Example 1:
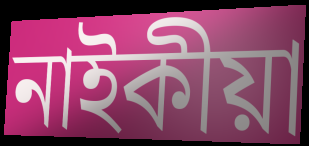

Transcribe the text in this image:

নাইকীয়া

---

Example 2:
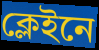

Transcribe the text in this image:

ক্লেইনে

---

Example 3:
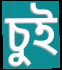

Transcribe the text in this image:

চুই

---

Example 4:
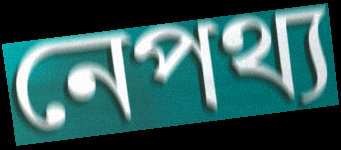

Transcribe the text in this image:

নেপথ্য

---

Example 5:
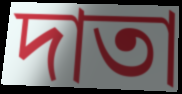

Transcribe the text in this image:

দাতা